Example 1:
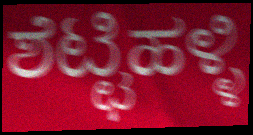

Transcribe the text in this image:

ಶೆಟ್ಟಿಹಳ್ಳಿ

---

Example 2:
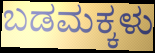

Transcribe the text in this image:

ಬಡಮಕ್ಕಳು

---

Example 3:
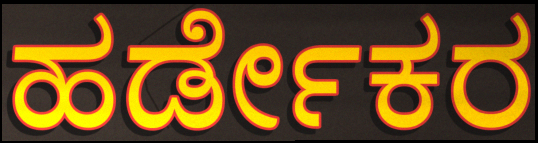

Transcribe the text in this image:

ಹರ್ಡೇಕರ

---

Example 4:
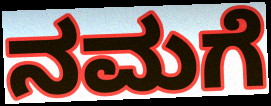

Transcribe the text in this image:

ನಮಗೆ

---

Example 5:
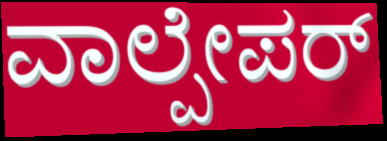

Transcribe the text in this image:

ವಾಲ್ಪೇಪರ್